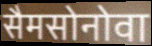
सैमसोनोवा